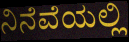
ನಿನೆವೆಯಲ್ಲಿ